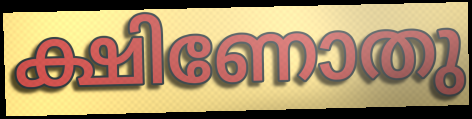
ക്ഷിണോതു